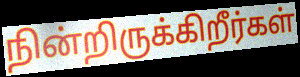
நின்றிருக்கிறீர்கள்